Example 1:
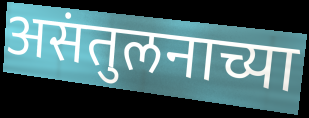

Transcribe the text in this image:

असंतुलनाच्या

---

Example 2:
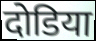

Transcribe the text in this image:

दोडिया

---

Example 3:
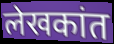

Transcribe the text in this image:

लेखकांत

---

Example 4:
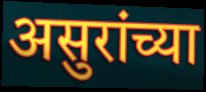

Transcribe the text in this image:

असुरांच्या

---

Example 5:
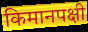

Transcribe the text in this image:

किमानपक्षी